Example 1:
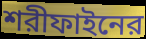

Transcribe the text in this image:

শরীফাইনের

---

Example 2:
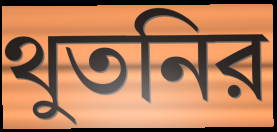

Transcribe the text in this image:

থুতনির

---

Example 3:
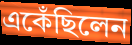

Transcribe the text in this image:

একেঁছিলেন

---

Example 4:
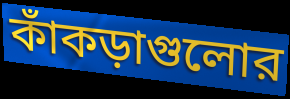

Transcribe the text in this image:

কাঁকড়াগুলোর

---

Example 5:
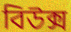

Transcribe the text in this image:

বিউক্স